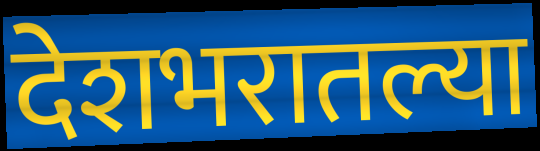
देशभरातल्या